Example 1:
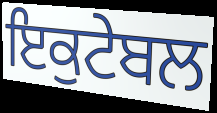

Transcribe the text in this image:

ਇਕੁਟੇਬਲ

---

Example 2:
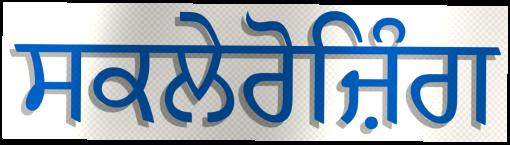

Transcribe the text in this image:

ਸਕਲੇਰੋਜ਼ਿੰਗ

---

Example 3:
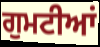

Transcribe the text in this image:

ਗੁਮਟੀਆਂ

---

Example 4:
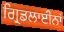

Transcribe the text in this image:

ਗ੍ਰਿਡਲਾਈਨਾਂ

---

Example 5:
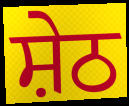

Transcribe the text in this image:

ਸ਼ੇਠ